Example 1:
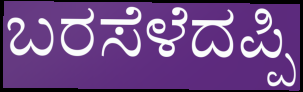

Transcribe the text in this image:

ಬರಸೆಳೆದಪ್ಪಿ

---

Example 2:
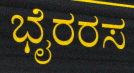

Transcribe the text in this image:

ಭೈರರಸ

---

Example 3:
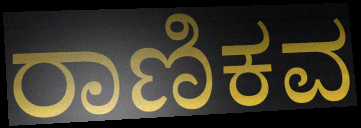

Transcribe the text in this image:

ರಾಣಿಕವ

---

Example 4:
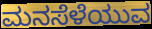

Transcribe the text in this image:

ಮನಸೆಳೆಯುವ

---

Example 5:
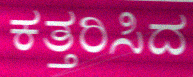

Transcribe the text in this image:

ಕತ್ತರಿಸಿದ